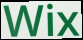
Wix